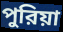
পুরিয়া